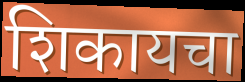
शिकायचा